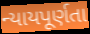
ન્યાયપૂર્ણતા